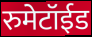
रुमेटॉईड